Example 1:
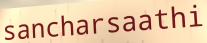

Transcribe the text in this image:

sancharsaathi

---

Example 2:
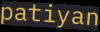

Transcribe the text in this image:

patiyan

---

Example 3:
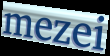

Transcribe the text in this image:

mezei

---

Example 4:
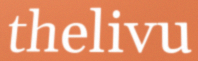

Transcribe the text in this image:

thelivu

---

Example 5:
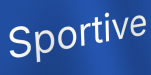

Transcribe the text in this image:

Sportive